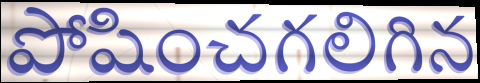
పోషించగలిగిన